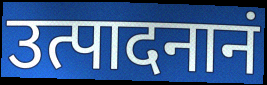
उत्पादनानं